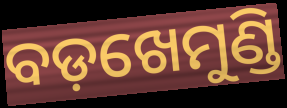
ବଡ଼ଖେମୁଣ୍ଡି